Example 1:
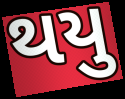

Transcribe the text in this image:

થયુ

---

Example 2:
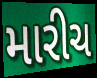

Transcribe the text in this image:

મારીચ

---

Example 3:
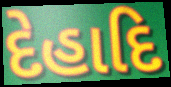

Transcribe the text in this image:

દેહાદિ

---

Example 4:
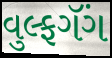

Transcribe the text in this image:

વુલ્ફગૅંગ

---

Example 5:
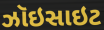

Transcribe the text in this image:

ઝૉઇસાઇટ